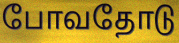
போவதோடு